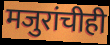
मजुरांचीही